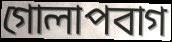
গোলাপবাগ